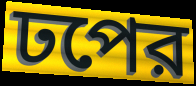
ঢপের